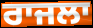
ਰਾਜਲਾ